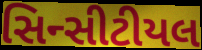
સિન્સીટીયલ